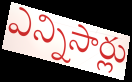
ఎన్నిసార్లు